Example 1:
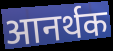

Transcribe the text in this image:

आनर्थक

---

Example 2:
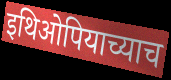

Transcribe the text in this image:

इथिओपियाच्याच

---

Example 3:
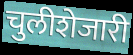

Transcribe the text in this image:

चुलीशेजारी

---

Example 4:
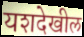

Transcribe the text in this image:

यशदेखील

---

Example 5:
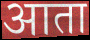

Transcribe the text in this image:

आता